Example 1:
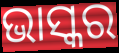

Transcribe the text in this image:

ଭାସ୍କର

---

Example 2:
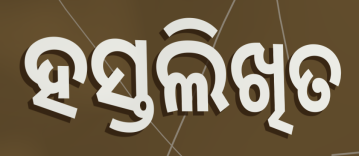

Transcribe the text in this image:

ହସ୍ତଲିଖିତ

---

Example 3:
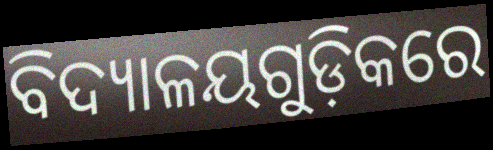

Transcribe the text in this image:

ବିଦ୍ୟାଳୟଗୁଡ଼ିକରେ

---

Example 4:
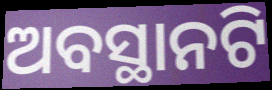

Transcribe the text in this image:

ଅବସ୍ଥାନଟି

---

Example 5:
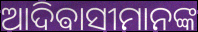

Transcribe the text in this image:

ଆଦିଵାସୀମାନଙ୍କ